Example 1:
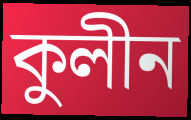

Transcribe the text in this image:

কুলীন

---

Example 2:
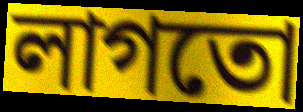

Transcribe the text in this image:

লাগতো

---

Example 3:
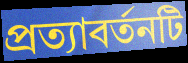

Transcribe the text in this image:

প্রত্যাবর্তনটি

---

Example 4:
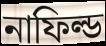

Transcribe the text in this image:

নাফিল্ড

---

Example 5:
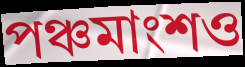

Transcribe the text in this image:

পঞ্চমাংশও